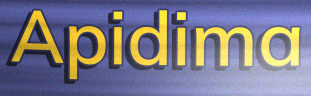
Apidima